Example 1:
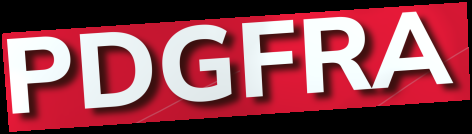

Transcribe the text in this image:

PDGFRA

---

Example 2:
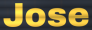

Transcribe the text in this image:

Jose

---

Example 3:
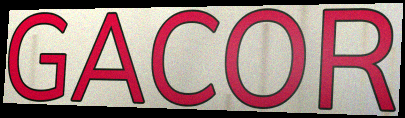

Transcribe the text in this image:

GACOR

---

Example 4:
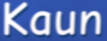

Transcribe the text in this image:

Kaun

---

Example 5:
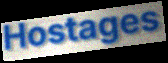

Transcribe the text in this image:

Hostages